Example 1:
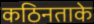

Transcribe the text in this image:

कठिनताके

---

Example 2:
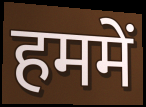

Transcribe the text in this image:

हममें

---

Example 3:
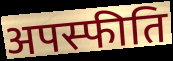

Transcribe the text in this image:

अपस्फीति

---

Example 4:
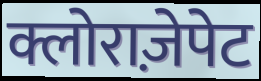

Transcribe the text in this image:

क्लोराज़ेपेट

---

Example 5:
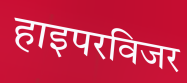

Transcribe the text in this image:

हाइपरविजर